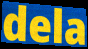
dela